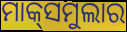
ମାକ୍‌ସମୁଲାର